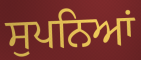
ਸੁਪਨਿਆਂ